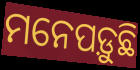
ମନେପଡ଼ୁଛି